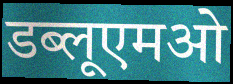
डब्लूएमओ